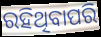
ରହିଥିବାପରି